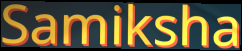
Samiksha